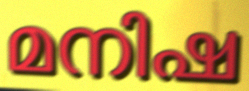
മനിഷ